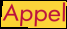
Appel